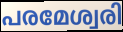
പരമേശ്വരി